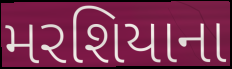
મરશિયાના